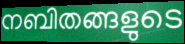
നബിതങ്ങളുടെ